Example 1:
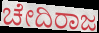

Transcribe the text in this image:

ಚೇದಿರಾಜ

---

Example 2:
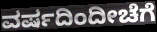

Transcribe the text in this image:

ವರ್ಷದಿಂದೀಚೆಗೆ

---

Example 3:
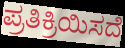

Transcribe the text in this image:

ಪ್ರತಿಕ್ರಿಯಿಸದೆ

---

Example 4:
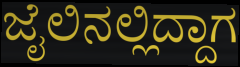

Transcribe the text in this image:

ಜೈಲಿನಲ್ಲಿದ್ದಾಗ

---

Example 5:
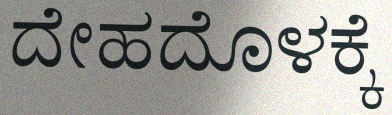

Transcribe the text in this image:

ದೇಹದೊಳಕ್ಕೆ